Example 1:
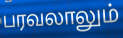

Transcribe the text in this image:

பரவலாலும்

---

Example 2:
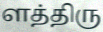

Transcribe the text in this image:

ளத்திரு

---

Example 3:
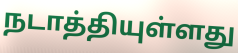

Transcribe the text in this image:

நடாத்தியுள்ளது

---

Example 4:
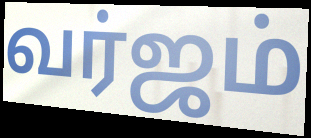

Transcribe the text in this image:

வர்ஜம்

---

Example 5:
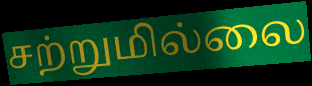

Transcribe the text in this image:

சற்றுமில்லை